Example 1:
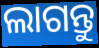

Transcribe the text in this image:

ଲାଗନ୍ତୁ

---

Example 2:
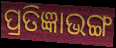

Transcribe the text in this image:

ପ୍ରତିଜ୍ଞାଭଙ୍ଗ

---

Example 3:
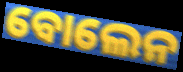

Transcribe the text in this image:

ବୋଲେନ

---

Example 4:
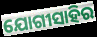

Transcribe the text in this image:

ଯୋଗୀସାହିର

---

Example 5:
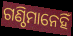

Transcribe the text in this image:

ଗଣ୍ଠିମାନେହିଁ